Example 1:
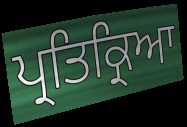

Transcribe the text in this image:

ਪ੍ਰਤਿਕ੍ਰਿਆ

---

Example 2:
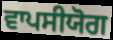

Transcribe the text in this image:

ਵਾਪਸੀਯੋਗ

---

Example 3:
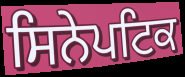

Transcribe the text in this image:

ਸਿਨੇਪਟਿਕ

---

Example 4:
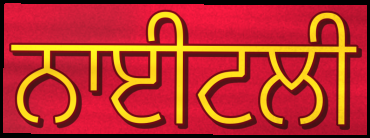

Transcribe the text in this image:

ਨਾਈਟਲੀ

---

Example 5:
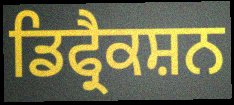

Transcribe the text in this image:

ਡਿਫ੍ਰੈਕਸ਼ਨ